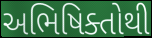
અભિષિક્તોથી